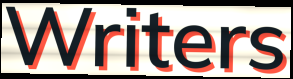
Writers